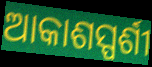
ଆକାଶସ୍ପର୍ଶୀ